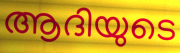
ആദിയുടെ